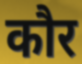
कौर